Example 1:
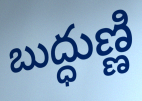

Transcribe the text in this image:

బుద్ధుణ్ణి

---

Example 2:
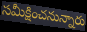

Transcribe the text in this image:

సమీక్షించనున్నారు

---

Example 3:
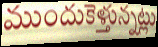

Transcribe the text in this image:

ముందుకెళ్తున్నట్లు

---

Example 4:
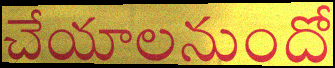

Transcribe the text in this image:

చేయాలనుందో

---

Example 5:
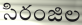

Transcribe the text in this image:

సిరంజిల